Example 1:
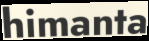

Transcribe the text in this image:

himanta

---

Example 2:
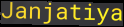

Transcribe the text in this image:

Janjatiya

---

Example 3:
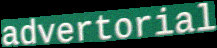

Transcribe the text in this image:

advertorial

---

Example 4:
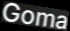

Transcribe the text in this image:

Goma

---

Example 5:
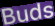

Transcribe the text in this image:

Buds